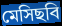
মেসিছবি